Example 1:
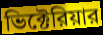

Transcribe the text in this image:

ভিক্টেরিয়ার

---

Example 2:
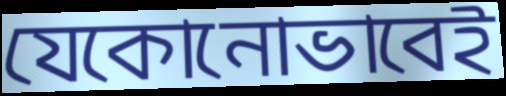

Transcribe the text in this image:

যেকোনোভাবেই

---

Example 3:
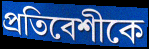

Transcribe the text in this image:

প্রতিবেশীকে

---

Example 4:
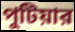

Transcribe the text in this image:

পুটিয়ার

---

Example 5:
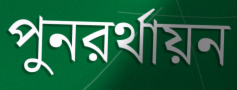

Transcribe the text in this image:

পুনরর্থায়ন